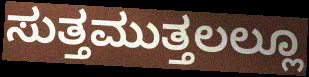
ಸುತ್ತಮುತ್ತಲಲ್ಲೂ